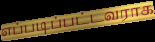
எப்படிப்பட்டவராக